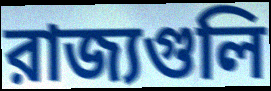
রাজ্যগুলি